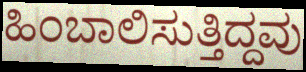
ಹಿಂಬಾಲಿಸುತ್ತಿದ್ದವು